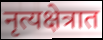
नृत्यक्षेत्रात